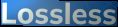
Lossless